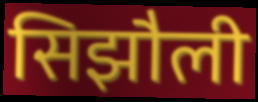
सिझौली